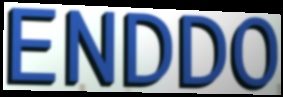
ENDDO